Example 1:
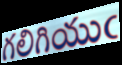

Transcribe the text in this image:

గలిగియుఁ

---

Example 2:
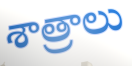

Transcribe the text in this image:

శాత్రాలు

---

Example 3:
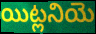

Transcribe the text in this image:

యిట్లనియె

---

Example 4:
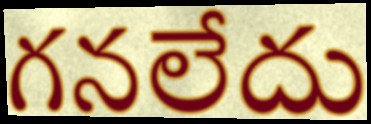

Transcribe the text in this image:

గనలేదు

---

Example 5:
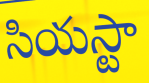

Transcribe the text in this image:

సియస్టా